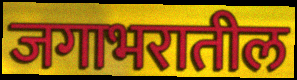
जगाभरातील